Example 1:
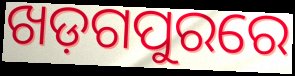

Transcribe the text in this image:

ଖଡ଼ଗପୁରରେ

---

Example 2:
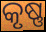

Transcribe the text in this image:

କୃଷ୍ଣ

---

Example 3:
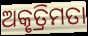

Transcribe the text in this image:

ଅକୃତ୍ରିମତା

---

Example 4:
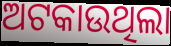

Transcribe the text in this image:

ଅଟକାଉଥିଲା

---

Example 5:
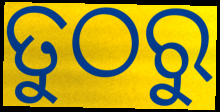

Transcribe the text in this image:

ତୁଠରୁ